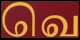
வெ